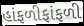
હાંફળીફાંફળી